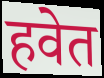
हवेत